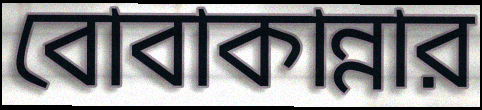
বোবাকান্নার